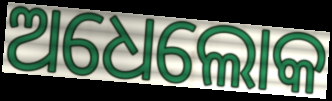
ଅଧେଲୋକ